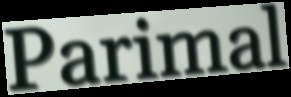
Parimal